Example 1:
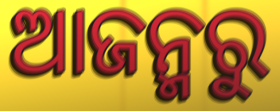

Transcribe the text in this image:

ଆଜନ୍ମରୁ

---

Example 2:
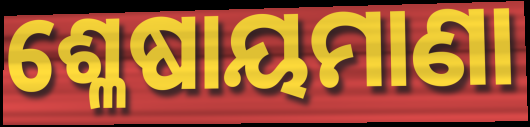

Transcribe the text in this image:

ଶ୍ଳେଷାୟମାଣା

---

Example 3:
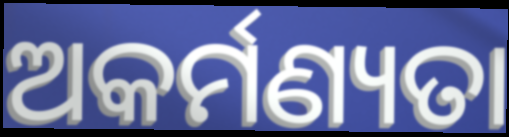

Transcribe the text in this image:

ଅକର୍ମଣ୍ୟତା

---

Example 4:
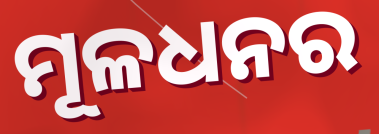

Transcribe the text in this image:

ମୂଳଧନର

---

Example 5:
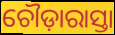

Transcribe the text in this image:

ଚୌଡ଼ାରାସ୍ତା